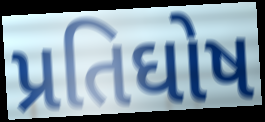
પ્રતિઘોષ